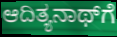
ಆದಿತ್ಯನಾಥ್‌ಗೆ